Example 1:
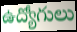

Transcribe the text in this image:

ఉద్యోగులు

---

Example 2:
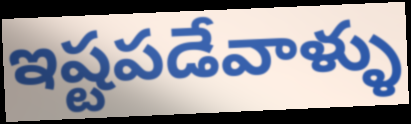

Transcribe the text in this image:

ఇష్టపడేవాళ్ళు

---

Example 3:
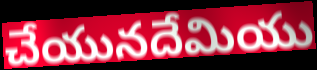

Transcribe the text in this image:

చేయునదేమియు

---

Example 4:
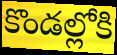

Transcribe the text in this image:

కొండల్లోకి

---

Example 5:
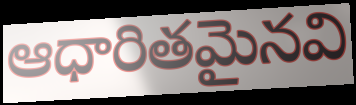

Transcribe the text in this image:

ఆధారితమైనవి